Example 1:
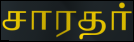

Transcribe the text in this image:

சாரதர்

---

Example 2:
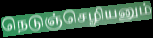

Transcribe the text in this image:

நெடுஞ்செழியனும்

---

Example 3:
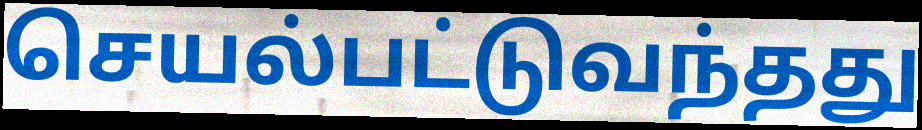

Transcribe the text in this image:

செயல்பட்டுவந்தது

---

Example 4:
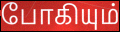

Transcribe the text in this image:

போகியும்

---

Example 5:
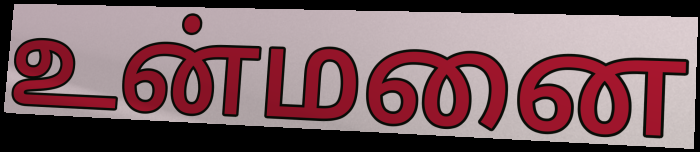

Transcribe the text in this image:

உன்மனை